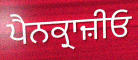
ਪੈਨਕ੍ਰਾਜ਼ੀਓ